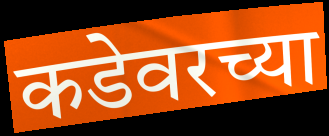
कडेवरच्या